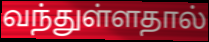
வந்துள்ளதால்